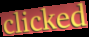
clicked